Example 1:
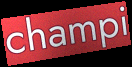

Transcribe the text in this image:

champi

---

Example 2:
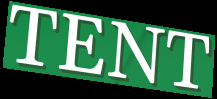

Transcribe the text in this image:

TENT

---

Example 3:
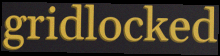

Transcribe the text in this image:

gridlocked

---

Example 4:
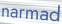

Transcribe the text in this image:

narmad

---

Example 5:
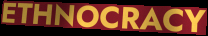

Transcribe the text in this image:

ETHNOCRACY